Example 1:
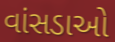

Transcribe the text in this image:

વાંસડાઓ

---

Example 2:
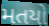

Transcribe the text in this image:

મતયો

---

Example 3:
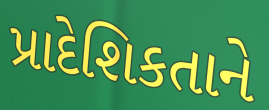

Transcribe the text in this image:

પ્રાદેશિકતાને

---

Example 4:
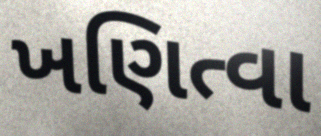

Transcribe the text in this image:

ખણિત્વા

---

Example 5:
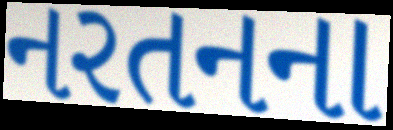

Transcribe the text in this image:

નરતનના